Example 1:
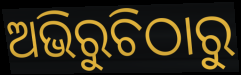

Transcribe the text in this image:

ଅଭିରୁଚିଠାରୁ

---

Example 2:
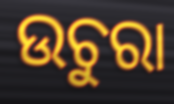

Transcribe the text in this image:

ଉଚୁରା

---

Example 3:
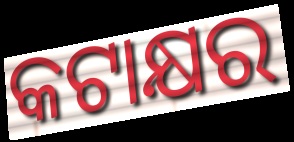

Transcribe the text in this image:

କଟାକ୍ଷର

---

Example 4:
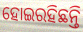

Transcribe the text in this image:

ହୋଇରହିଛନ୍ତି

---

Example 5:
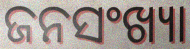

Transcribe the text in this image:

ଜନସଂଖ୍ଯା